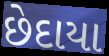
છેદાયા